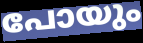
പോയും